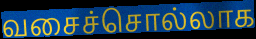
வசைச்சொல்லாக